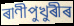
ৰাণীপুখুৰীৰ